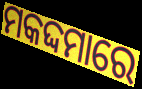
ମକଦ୍ଦମାରେ